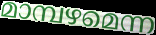
മാമ്പഴമെന്ന